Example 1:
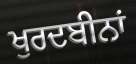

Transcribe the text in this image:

ਖੁਰਦਬੀਨਾਂ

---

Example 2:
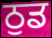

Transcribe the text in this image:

ਠੁਡ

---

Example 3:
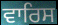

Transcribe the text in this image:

ਵਾਰਿਸ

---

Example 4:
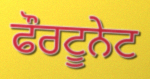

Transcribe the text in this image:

ਫੌਰਟੂਨੇਟ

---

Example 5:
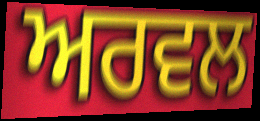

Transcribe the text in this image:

ਅਰਵਲ